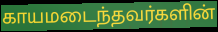
காயமடைந்தவர்களின்